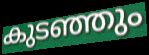
കുടഞ്ഞും